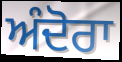
ਅੰਦੋਰਾ